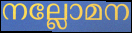
നല്ലോമന